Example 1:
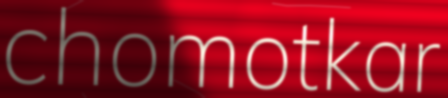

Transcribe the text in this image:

chomotkar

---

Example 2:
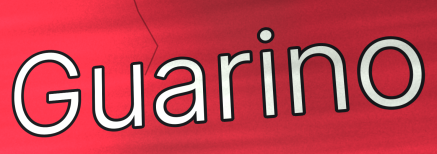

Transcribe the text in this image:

Guarino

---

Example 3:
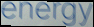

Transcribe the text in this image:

energy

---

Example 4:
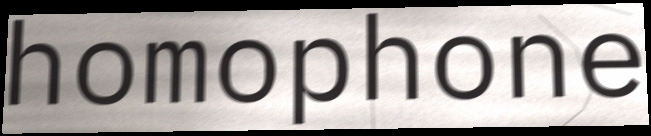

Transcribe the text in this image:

homophone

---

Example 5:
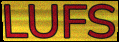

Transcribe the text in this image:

LUFS